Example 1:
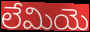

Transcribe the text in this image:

లేమియె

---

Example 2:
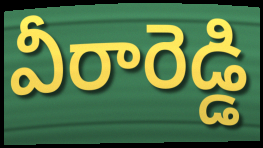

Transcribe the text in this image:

వీరారెడ్డి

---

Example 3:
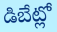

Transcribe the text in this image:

డిబేట్లో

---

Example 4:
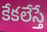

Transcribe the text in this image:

కేకలేస్తే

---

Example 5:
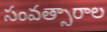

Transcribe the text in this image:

సంవత్సారాల